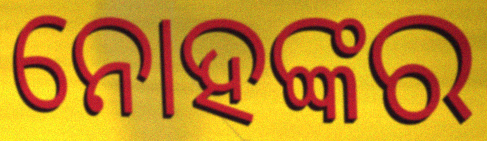
ନୋହଙ୍କର